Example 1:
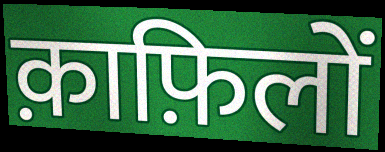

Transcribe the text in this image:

क़ाफ़िलों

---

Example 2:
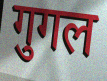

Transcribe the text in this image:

गुगल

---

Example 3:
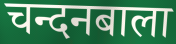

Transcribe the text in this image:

चन्दनबाला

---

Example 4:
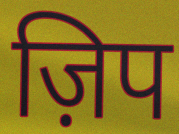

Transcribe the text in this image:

ज़िप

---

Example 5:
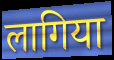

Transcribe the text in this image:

लागिया